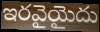
ఇరవైయైదు